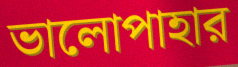
ভালোপাহার